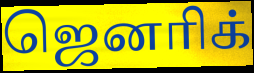
ஜெனரிக்